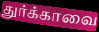
துர்க்காவை